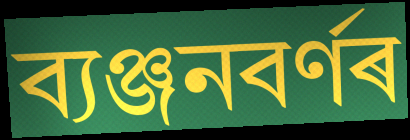
ব্যঞ্জনবৰ্ণৰ